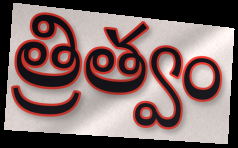
త్రిత్వం